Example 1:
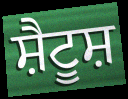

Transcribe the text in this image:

ਸ਼ੈਟੂਸ਼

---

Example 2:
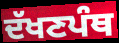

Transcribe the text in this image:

ਦੱਖਣਪੰਥ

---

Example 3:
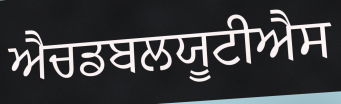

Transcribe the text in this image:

ਐਚਡਬਲਯੂਟੀਐਸ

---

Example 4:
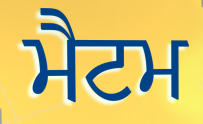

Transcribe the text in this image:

ਮੈਟਮ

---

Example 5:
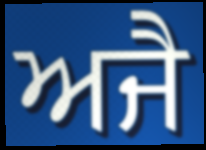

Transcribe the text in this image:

ਅਜੈ